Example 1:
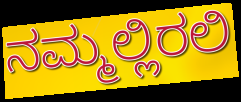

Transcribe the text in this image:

ನಮ್ಮಲ್ಲಿರಲಿ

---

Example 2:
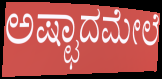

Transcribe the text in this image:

ಅಷ್ಟಾದಮೇಲೆ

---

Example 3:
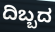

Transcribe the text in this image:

ದಿಬ್ಬದ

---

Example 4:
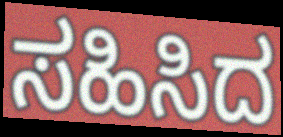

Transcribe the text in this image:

ಸಹಿಸಿದ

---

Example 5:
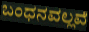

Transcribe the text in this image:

ಬಂಧನವಲ್ಲವೆ